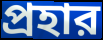
প্রহার